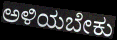
ಅಳಿಯಬೇಕು